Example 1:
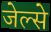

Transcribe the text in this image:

जेल्से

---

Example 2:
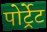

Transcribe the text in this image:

पोर्ट्रेट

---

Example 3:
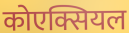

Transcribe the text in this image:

कोएक्सियल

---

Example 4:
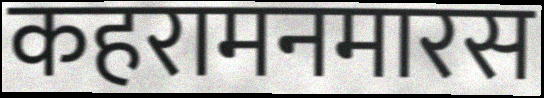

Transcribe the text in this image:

कहरामनमारस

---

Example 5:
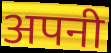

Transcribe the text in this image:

अपनी